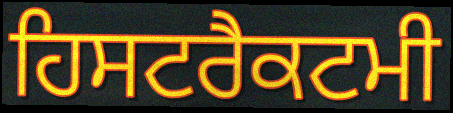
ਹਿਸਟਰੈਕਟਮੀ